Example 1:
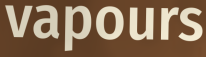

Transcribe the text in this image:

vapours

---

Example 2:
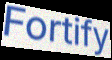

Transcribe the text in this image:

Fortify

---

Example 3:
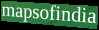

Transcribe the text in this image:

mapsofindia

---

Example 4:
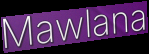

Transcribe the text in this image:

Mawlana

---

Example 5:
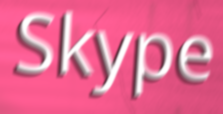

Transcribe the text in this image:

Skype